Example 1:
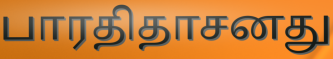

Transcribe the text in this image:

பாரதிதாசனது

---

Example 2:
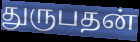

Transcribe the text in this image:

துருபதன்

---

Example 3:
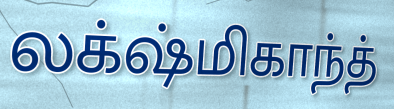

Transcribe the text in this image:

லக்‌ஷ்மிகாந்த்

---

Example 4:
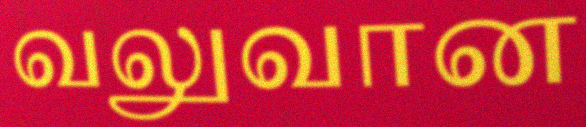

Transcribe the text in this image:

வலுவான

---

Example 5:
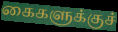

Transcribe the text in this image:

கைகளுக்குச்